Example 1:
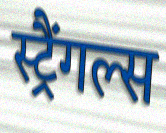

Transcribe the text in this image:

स्ट्रैंगल्स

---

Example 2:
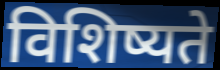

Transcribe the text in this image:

विशिष्यते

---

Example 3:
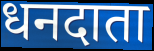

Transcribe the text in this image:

धनदाता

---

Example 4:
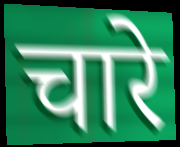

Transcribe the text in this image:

चारे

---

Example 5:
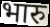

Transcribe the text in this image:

भारु